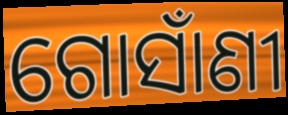
ଗୋସାଁଣୀ